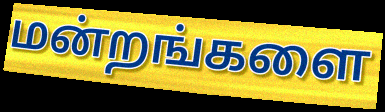
மன்றங்களை